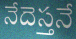
నేదెస్తనే